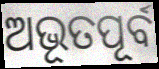
ଅଭୂତପୂର୍ବ